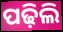
ପଢ଼ିଲି